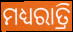
ମଧ୍ଯରାତ୍ରି